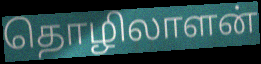
தொழிலாளன்